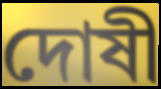
দোষী